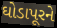
ઘોડાપૂરને